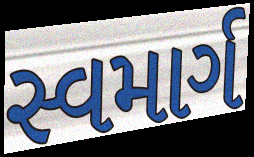
સ્વમાર્ગ